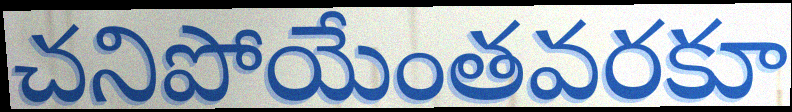
చనిపోయేంతవరకూ